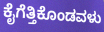
ಕೈಗೆತ್ತಿಕೊಂಡವಳು